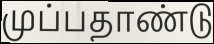
முப்பதாண்டு